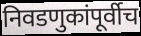
निवडणुकांपूर्वीच